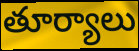
తూర్యాలు